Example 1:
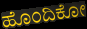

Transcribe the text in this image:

ಹೊಂದಿಕೋ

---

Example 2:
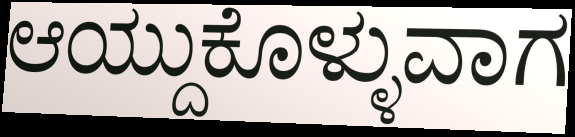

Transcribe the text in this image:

ಆಯ್ದುಕೊಳ್ಳುವಾಗ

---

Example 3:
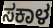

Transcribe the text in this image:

ಸಕಾಳ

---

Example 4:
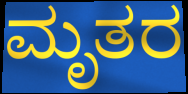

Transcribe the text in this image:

ಮೃತರ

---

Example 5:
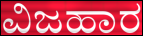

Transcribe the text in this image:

ವಿಜಹಾರ